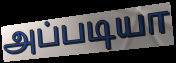
அப்படியா